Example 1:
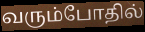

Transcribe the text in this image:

வரும்போதில்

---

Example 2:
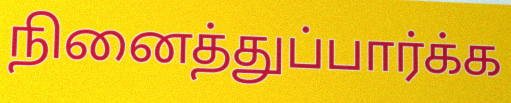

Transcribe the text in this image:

நினைத்துப்பார்க்க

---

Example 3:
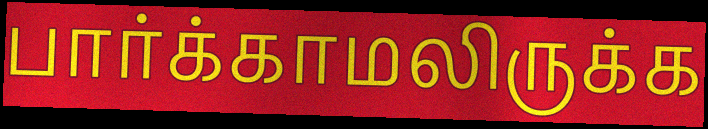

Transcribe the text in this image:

பார்க்காமலிருக்க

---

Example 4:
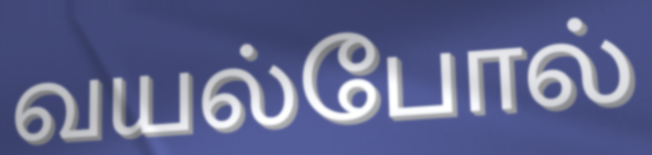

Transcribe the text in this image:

வயல்போல்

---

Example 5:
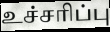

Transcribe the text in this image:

உச்சரிப்பு